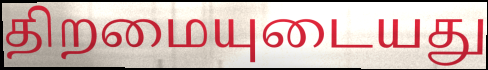
திறமையுடையது